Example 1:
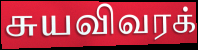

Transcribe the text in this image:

சுயவிவரக்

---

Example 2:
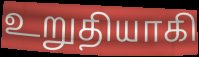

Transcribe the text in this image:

உறுதியாகி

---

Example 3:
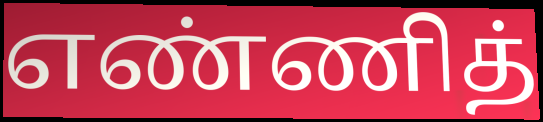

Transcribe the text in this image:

எண்ணித்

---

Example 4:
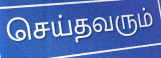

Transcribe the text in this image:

செய்தவரும்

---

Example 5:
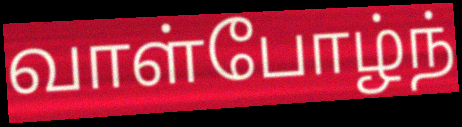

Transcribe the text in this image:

வாள்போழ்ந்